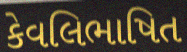
કેવલિભાષિત